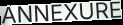
ANNEXURE